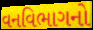
વનવિભાગનો